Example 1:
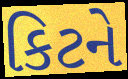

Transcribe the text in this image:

કિટને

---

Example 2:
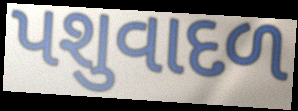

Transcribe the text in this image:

પશુવાદળ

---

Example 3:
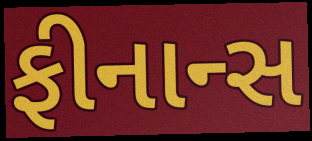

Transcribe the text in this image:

ફીનાન્સ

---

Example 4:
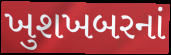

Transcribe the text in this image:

ખુશખબરનાં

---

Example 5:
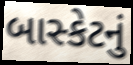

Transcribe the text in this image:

બાસ્કેટનું